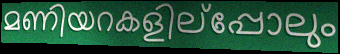
മണിയറകളില്പ്പോലും